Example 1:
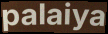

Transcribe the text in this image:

palaiya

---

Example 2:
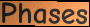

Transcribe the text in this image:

Phases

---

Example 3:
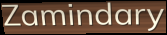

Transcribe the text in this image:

Zamindary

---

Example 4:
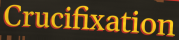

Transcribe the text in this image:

Crucifixation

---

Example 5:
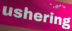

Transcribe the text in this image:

ushering